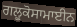
ਗਲੂਕੋਸਾਮਾਈਨ